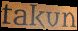
takun